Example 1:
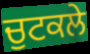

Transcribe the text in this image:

ਚੁਟਕਲੇ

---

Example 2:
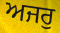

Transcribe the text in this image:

ਅਜਰੁ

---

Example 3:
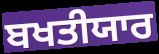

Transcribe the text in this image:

ਬਖਤੀਯਾਰ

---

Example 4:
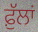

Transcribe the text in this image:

ਫ਼ੁੱਲਾਂ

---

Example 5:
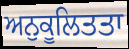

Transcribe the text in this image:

ਅਨੁਕੂਲਿਤਤਾ